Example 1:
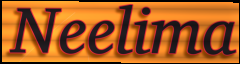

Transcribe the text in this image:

Neelima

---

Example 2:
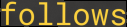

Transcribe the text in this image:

follows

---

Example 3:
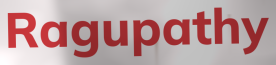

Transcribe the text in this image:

Ragupathy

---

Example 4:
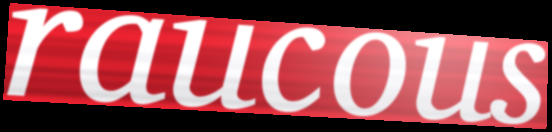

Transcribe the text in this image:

raucous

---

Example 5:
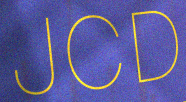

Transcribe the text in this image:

JCD